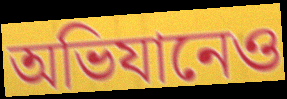
অভিযানেও